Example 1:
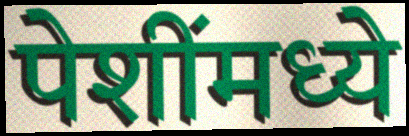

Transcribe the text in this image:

पेशींमध्ये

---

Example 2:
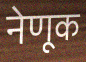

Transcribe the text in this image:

नेणूक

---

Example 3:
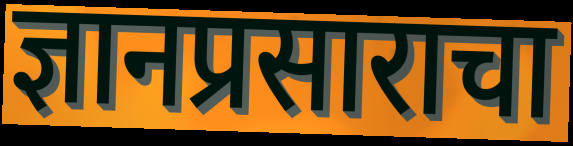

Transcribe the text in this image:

ज्ञानप्रसाराचा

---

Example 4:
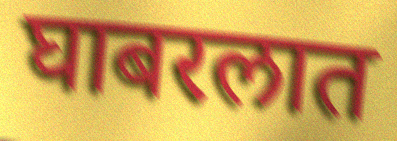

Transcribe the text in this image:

घाबरलात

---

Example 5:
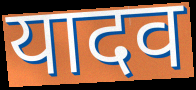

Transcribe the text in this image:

यादव